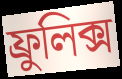
ফ্রুলিক্স